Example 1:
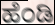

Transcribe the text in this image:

ಹೆಂಡಿ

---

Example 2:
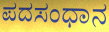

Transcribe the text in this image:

ಪದಸಂಧಾನ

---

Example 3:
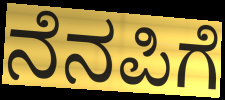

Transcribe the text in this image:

ನೆನಪಿಗೆ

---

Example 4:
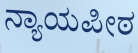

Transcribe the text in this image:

ನ್ಯಾಯಪೀಠ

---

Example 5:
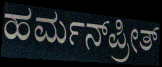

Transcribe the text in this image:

ಹರ್ಮನ್‌ಪ್ರೀತ್